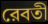
রেবতী